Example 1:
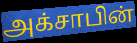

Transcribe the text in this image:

அக்சாபின்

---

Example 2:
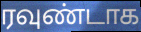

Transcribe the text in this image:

ரவுண்டாக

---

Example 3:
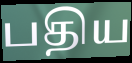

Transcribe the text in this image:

பதிய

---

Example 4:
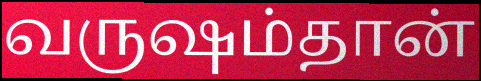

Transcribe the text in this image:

வருஷம்தான்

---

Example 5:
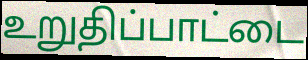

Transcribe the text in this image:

உறுதிப்பாட்டை